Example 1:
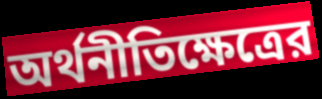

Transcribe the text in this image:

অর্থনীতিক্ষেত্রের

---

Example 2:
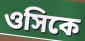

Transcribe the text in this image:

ওসিকে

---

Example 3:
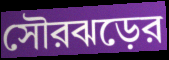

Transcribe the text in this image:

সৌরঝড়ের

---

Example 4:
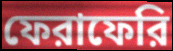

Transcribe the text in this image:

ফেরাফেরি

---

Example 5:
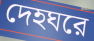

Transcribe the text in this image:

দেহঘরে